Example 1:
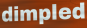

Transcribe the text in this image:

dimpled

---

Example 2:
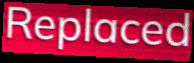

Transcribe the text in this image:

Replaced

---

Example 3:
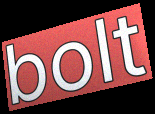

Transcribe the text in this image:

bolt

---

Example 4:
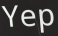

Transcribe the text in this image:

Yep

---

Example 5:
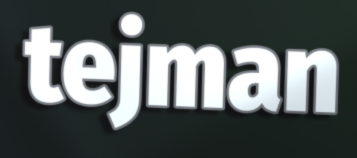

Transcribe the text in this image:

tejman